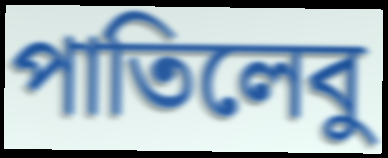
পাতিলেবু